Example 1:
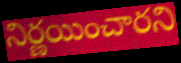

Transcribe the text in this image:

నిర్ణయించారని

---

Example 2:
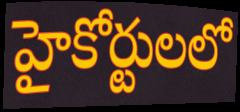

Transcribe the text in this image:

హైకోర్టులలో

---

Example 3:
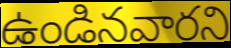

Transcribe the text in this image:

ఉండినవారని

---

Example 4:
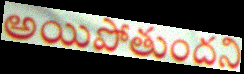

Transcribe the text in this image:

అయిపోతుందని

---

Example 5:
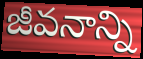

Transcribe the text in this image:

జీవనాన్ని